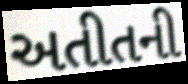
અતીતની